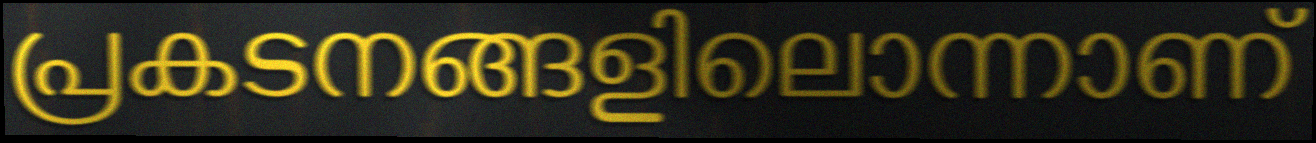
പ്രകടനങ്ങളിലൊന്നാണ്